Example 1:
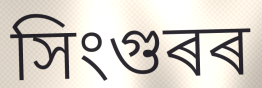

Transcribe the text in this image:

সিংগুৰৰ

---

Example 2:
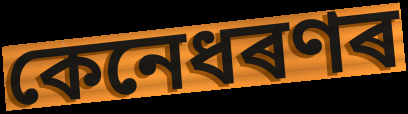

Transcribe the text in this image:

কেনেধৰণৰ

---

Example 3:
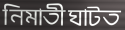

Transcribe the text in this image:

নিমাতীঘাটত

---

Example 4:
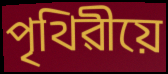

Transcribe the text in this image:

পৃথিৱীয়ে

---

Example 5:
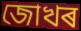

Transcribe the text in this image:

জোখৰ